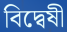
বিদ্বেষী